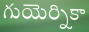
గుయెర్నికా